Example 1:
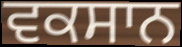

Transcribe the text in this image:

ਵਕਸਾਨ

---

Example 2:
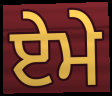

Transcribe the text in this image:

ਏਮੇ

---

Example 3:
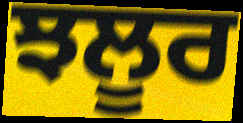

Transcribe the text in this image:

ਝਲੂਰ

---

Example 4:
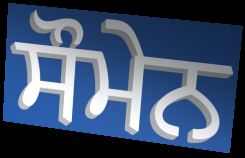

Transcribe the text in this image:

ਸੌਮੇਨ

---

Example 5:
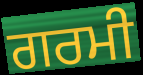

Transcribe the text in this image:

ਗਰਮੀ